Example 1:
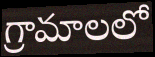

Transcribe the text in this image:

గ్రామాలలో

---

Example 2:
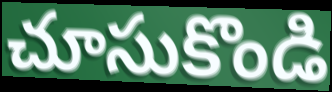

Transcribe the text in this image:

చూసుకొండి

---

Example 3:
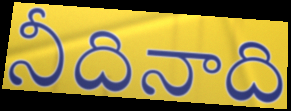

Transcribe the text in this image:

నీదినాది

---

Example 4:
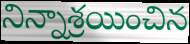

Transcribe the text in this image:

నిన్నాశ్రయించిన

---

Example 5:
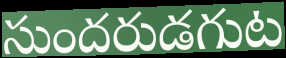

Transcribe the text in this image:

సుందరుడగుట